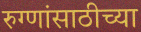
रुग्णांसाठीच्या